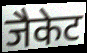
जैकेट